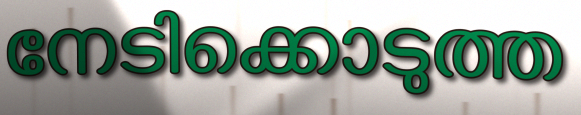
നേടിക്കൊടുത്ത